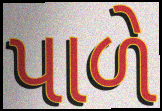
પાળે